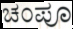
ಚಂಪೂ